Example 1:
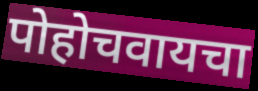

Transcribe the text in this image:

पोहोचवायचा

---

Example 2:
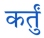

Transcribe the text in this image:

कर्तुं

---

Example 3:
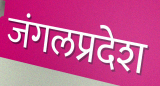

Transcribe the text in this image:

जंगलप्रदेश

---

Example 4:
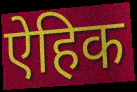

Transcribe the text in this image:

ऐहिक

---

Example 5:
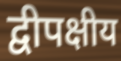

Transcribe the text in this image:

द्वीपक्षीय